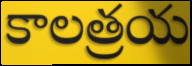
కాలత్రయ